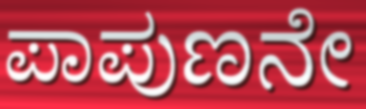
ಪಾಪುಣನೇ